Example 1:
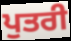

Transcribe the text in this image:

ਪੁਤਰੀ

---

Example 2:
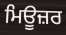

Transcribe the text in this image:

ਮਿਊਜ਼ਰ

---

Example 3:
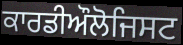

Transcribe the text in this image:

ਕਾਰਡੀਔਲੋਜਿਸਟ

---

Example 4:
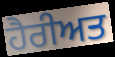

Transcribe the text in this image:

ਹੈਰੀਅਤ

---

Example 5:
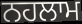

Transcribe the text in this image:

ਨਹਲਾਮ